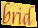
brid